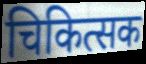
चिकित्सक